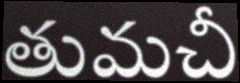
తుమచీ